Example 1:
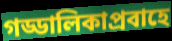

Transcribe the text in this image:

গড্ডালিকাপ্রবাহে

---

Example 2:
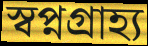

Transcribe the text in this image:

স্বপ্নগ্রাহ্য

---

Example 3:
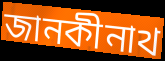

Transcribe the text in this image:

জানকীনাথ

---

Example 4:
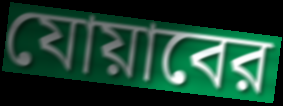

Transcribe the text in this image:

যোয়াবের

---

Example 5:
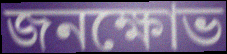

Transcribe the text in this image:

জনক্ষোভ